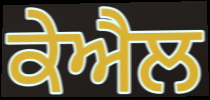
ਕੇਐਲ